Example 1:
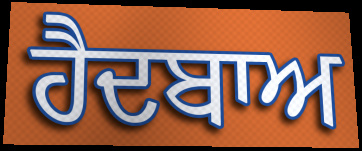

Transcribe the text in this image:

ਹੈਦਬਾਅ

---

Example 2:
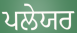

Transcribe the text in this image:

ਪਲੇਯਰ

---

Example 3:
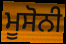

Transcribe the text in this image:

ਮੂਸੋਨੀ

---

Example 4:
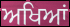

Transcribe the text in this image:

ਅਖਿਆਂ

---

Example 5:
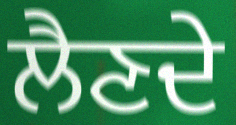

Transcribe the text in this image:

ਲੈਣਦੇ